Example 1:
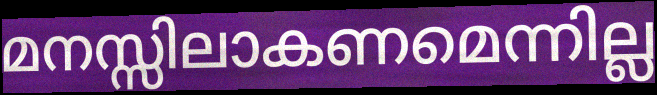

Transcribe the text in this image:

മനസ്സിലാകണമെന്നില്ല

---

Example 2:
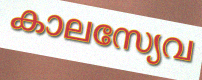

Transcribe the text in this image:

കാലസ്യേവ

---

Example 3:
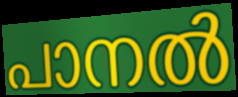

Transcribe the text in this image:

പാനൽ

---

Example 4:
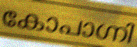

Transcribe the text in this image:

കോപാഗ്നി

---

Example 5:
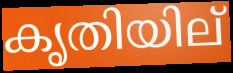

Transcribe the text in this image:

കൃതിയില്